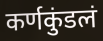
कर्णकुंडलं